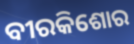
ବୀରକିଶୋର